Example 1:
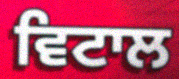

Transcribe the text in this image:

ਵਿਟਾਲ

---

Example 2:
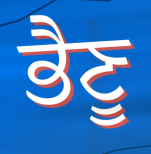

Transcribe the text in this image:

ਭੈਣੂ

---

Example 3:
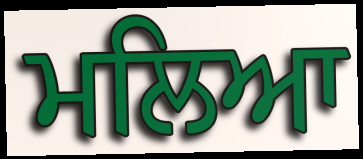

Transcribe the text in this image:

ਮਲਿਆ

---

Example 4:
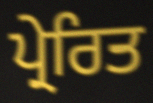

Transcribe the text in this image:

ਪ੍ਰੇਰਿਤ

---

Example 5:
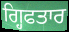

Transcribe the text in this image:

ਗ੍ਹਿਫਤਾਰ